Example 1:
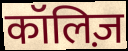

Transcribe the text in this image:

कॉलिज़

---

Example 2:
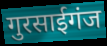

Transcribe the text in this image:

गुरसाईगंज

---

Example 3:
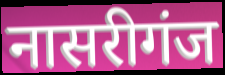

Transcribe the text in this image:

नासरीगंज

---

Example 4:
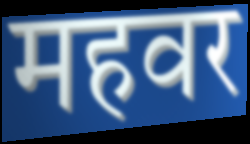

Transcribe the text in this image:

महवर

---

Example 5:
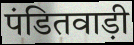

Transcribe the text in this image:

पंडितवाड़ी